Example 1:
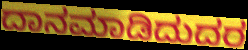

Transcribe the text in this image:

ದಾನಮಾಡಿದುದರ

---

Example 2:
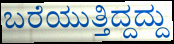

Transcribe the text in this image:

ಬರೆಯುತ್ತಿದ್ದದ್ದು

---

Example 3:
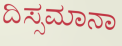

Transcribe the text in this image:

ದಿಸ್ಸಮಾನಾ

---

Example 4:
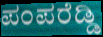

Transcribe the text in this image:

ಪಂಪರೆಡ್ಡಿ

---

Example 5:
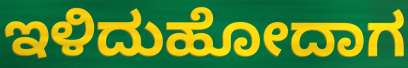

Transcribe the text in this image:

ಇಳಿದುಹೋದಾಗ